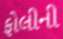
ફોલીની